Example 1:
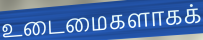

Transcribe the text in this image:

உடைமைகளாகக்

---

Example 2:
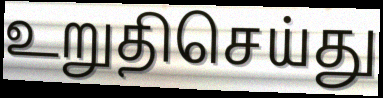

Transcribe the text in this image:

உறுதிசெய்து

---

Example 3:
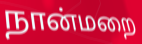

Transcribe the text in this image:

நான்மறை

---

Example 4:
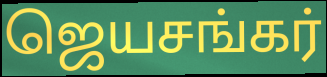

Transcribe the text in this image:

ஜெயசங்கர்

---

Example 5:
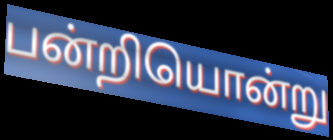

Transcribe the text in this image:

பன்றியொன்று